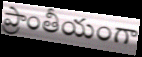
ప్రాంతీయంగా